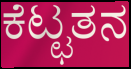
ಕೆಟ್ಟತನ